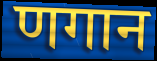
णगान